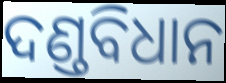
ଦଣ୍ଡବିଧାନ